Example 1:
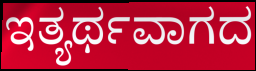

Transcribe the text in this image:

ಇತ್ಯರ್ಥವಾಗದ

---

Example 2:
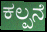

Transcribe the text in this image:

ಕಲ್ಪನೆ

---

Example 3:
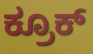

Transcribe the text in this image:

ಕ್ರೂಕ್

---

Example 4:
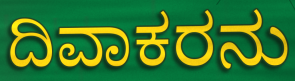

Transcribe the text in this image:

ದಿವಾಕರನು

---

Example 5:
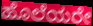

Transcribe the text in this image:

ಹೊಲೆಯರೇ